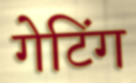
गेटिंग